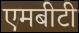
एमबीटी